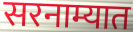
सरनाम्यात